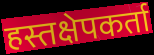
हस्तक्षेपकर्ता